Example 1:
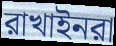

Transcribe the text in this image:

রাখাইনরা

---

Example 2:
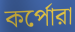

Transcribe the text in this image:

কর্পোরা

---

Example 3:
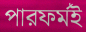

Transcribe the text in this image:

পারফর্মই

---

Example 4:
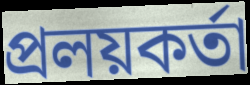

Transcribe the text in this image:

প্রলয়কর্তা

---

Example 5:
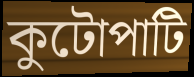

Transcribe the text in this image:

কুটোপাটি